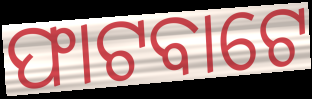
ଫାଟବାଟେ